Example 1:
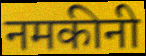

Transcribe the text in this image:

नमकीनी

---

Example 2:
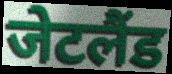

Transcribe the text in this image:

जेटलैंड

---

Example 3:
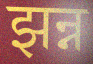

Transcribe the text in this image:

झन्न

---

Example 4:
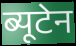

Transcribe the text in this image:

ब्यूटेन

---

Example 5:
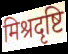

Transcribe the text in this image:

मिश्रदृष्टि